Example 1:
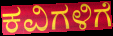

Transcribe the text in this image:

ಕವಿಗಳಿಗೆ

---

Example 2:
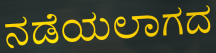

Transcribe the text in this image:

ನಡೆಯಲಾಗದ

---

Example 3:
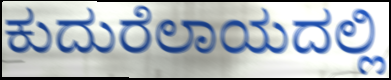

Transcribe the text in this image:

ಕುದುರೆಲಾಯದಲ್ಲಿ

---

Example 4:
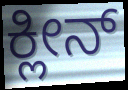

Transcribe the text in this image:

ಕ್ಲೀನ್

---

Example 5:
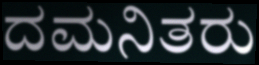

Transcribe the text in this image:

ದಮನಿತರು